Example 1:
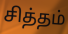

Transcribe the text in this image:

சித்தம்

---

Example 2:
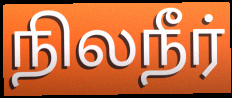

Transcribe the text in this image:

நிலநீர்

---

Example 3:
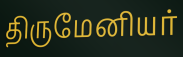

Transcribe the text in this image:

திருமேனியர்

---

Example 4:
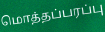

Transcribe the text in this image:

மொத்தப்பரப்பு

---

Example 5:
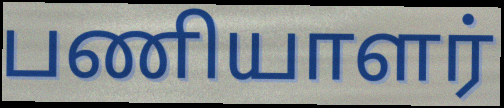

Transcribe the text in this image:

பணியாளர்